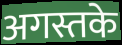
अगस्तके